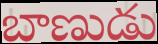
బాణుడు